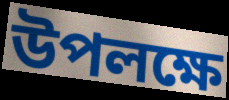
উপলক্ষে